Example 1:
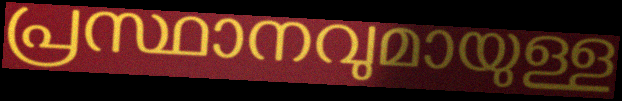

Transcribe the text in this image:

പ്രസ്ഥാനവുമായുള്ള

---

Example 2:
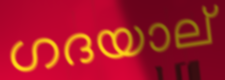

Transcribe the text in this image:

ഗദയാല്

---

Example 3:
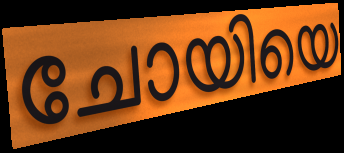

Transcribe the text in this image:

ചോയിയെ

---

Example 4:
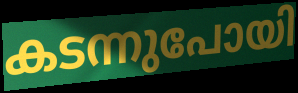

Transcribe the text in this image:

കടന്നുപോയി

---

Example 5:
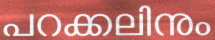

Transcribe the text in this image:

പറക്കലിനും